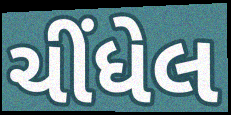
ચીંધેલ